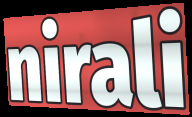
nirali